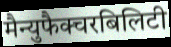
मैन्युफैक्चरबिलिटी